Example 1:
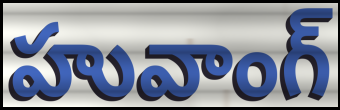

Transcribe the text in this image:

హువాంగ్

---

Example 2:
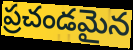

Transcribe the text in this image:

ప్రచండమైన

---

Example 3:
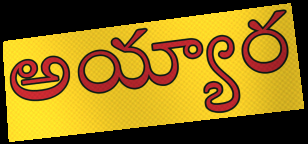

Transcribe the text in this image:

అయ్యార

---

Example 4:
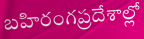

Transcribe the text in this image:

బహిరంగప్రదేశాల్లో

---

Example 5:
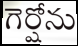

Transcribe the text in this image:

గెర్షోను